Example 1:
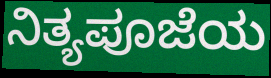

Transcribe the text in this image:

ನಿತ್ಯಪೂಜೆಯ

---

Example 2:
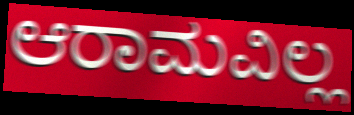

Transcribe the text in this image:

ಆರಾಮವಿಲ್ಲ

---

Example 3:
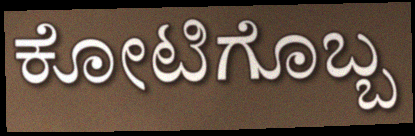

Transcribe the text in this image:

ಕೋಟಿಗೊಬ್ಬ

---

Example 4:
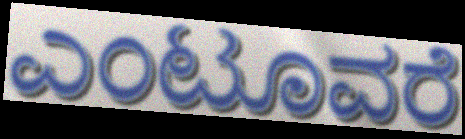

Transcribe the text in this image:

ಎಂಟೂವರೆ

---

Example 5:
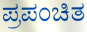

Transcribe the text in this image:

ಪ್ರಪಂಚಿತ